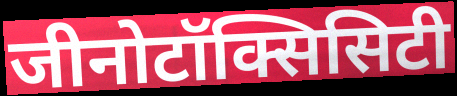
जीनोटॉक्सिसिटी